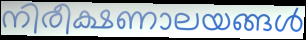
നിരീക്ഷണാലയങ്ങൾ